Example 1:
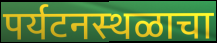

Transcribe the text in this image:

पर्यटनस्थळाचा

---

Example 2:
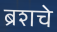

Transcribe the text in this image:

ब्रशचे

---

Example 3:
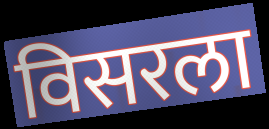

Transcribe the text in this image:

विसरला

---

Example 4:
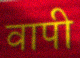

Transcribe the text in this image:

वापी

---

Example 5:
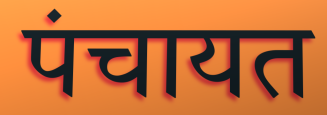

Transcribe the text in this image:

पंचायत